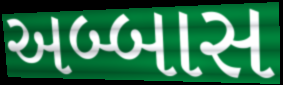
અબ્બાસ